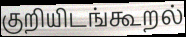
குறியிடங்கூறல்